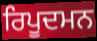
ਰਿਪੂਦਮਨ